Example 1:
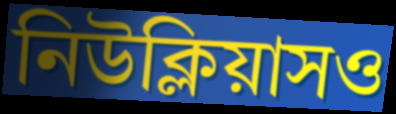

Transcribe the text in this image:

নিউক্লিয়াসও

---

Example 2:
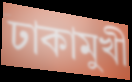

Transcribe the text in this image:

ঢাকামুখী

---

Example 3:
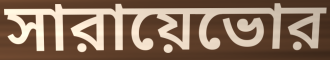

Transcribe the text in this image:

সারায়েভোর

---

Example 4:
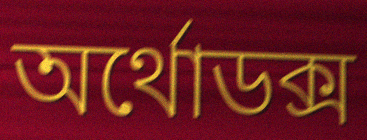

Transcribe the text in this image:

অর্থোডক্স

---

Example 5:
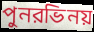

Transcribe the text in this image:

পুনরভিনয়